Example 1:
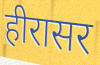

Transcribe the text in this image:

हीरासर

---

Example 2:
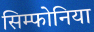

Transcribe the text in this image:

सिम्फोनिया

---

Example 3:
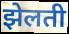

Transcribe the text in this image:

झेलती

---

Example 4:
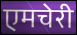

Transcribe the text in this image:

एमचेरी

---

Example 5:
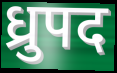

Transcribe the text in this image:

ध्रुपद